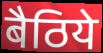
बैठिये